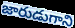
జారుడుగాని